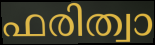
ഫരിത്വാ